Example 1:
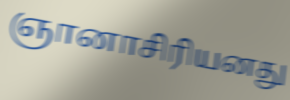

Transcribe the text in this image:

ஞானாசிரியனது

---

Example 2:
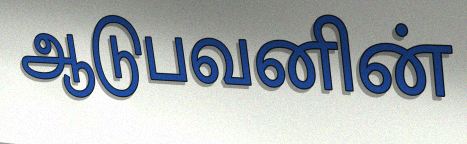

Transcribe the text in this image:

ஆடுபவனின்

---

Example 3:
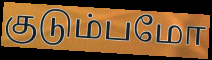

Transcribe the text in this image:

குடும்பமோ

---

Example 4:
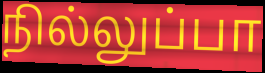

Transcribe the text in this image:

நில்லுப்பா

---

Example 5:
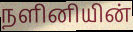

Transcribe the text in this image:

நளினியின்